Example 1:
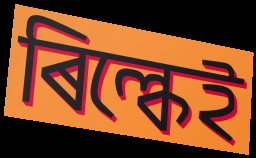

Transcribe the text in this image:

ৰিল্কেই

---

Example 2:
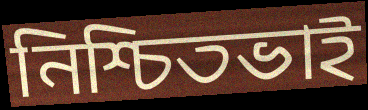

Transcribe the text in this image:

নিশ্চিতভাই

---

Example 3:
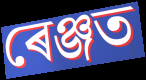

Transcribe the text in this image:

ৰেঞ্জত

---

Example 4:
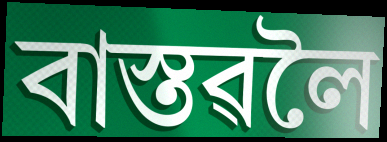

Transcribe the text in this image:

বাস্তৱলৈ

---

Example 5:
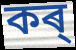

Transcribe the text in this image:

কৰ্